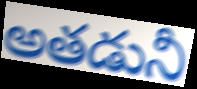
అతడునీ